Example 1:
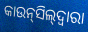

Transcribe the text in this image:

କାଉନ୍‌ସିଲ୍‌ଦ୍ବାରା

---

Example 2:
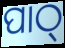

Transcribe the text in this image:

ପାଠ୍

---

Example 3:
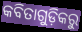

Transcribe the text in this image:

କବିତାଗୁଡ଼ିକରୁ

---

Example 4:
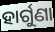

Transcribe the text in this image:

ହାର୍ଗୁଣା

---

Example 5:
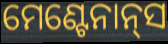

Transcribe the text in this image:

ମେଣ୍ଟେନାନ୍‌ସ